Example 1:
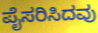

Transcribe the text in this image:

ಪೈಸರಿಸಿದವು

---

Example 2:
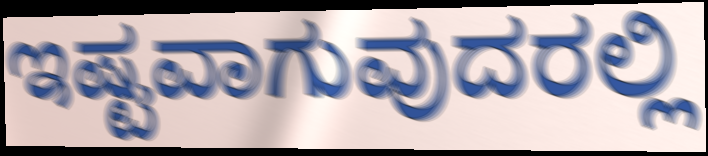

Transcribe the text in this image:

ಇಷ್ಟವಾಗುವುದರಲ್ಲಿ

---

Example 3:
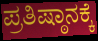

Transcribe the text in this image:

ಪ್ರತಿಷ್ಠಾನಕ್ಕೆ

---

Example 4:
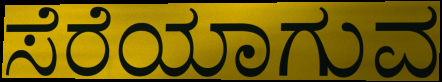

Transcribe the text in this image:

ಸೆರೆಯಾಗುವ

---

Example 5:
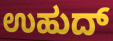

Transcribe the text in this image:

ಉಹುದ್